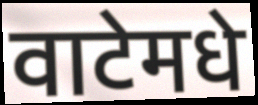
वाटेमधे